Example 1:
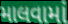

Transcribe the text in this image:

માલવામાં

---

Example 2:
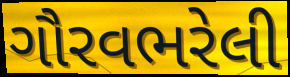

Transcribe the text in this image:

ગૌરવભરેલી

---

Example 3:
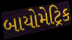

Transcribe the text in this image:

બાયોમેટ્રિક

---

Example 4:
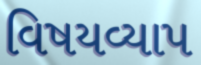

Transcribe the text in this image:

વિષયવ્યાપ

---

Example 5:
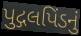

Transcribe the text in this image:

પુદ્ગલપિંડનું